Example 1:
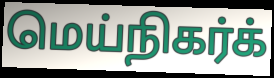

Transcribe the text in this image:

மெய்நிகர்க்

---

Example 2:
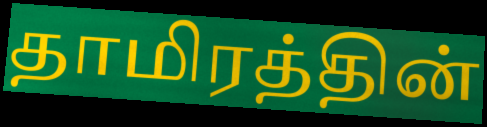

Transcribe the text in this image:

தாமிரத்தின்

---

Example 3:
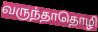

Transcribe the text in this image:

வருந்தாதொழி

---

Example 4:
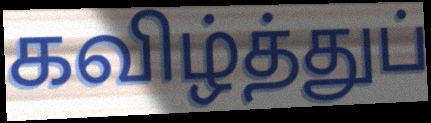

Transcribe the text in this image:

கவிழ்த்துப்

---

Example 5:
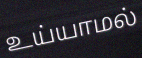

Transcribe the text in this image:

உய்யாமல்